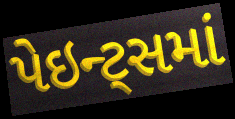
પેઇન્ટ્સમાં